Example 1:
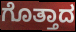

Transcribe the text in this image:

ಗೊತ್ತಾದ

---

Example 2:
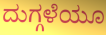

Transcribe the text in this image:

ದುಗ್ಗಳೆಯೂ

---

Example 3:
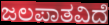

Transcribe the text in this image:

ಜಲಪಾತವಿದೆ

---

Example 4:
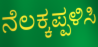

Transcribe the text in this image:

ನೆಲಕ್ಕಪ್ಪಳಿಸಿ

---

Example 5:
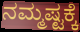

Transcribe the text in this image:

ನಮ್ಮಷ್ಟಕ್ಕೆ